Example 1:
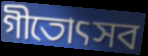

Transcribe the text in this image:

গীতোৎসব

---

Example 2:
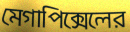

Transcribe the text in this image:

মেগাপিক্সেলের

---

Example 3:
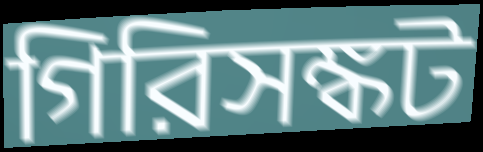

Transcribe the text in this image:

গিরিসঙ্কট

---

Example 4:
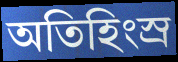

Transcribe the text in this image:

অতিহিংস্র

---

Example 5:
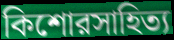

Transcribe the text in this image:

কিশোরসাহিত্য